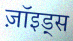
ज़ॉइड्स